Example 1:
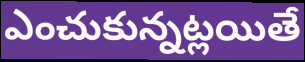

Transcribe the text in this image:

ఎంచుకున్నట్లయితే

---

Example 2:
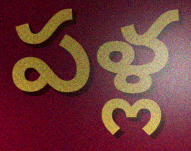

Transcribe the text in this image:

పళ్ల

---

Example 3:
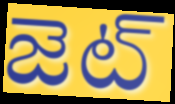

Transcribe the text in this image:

జెట్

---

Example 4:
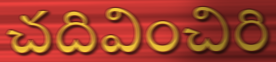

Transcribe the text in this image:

చదివించిరి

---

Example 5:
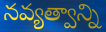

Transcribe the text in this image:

నవ్యత్వాన్ని